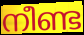
നീണ്ട